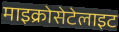
माइक्रोसेटेलाइट